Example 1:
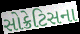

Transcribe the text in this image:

સોક્રેટિસના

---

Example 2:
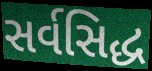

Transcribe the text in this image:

સર્વસિદ્ધ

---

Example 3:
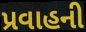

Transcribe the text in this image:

પ્રવાહની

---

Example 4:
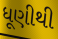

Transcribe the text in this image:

ધૂણીથી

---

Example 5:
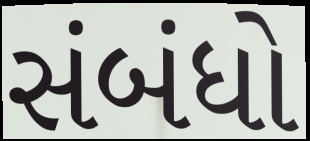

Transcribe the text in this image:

સંબંધો